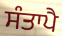
ਸੰਤਾਪੈ